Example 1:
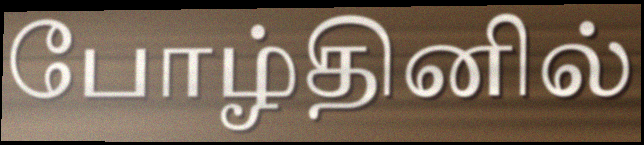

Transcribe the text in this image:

போழ்தினில்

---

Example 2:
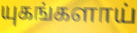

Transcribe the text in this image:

யுகங்களாய்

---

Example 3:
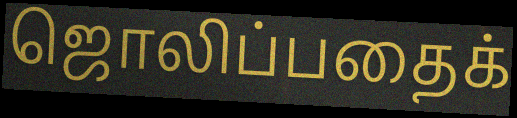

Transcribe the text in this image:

ஜொலிப்பதைக்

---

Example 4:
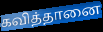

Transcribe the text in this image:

கவித்தானை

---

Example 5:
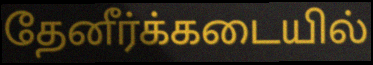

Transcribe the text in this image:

தேனீர்க்கடையில்